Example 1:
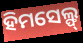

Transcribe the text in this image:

ହିମସେଲ୍ଫ୍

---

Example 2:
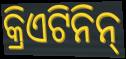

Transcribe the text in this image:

କ୍ରିଏଟିନିନ୍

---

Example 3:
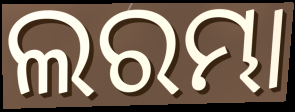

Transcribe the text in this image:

ଲରମ୍ଭା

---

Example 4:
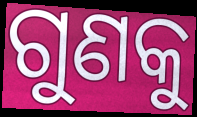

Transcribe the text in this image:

ଗୁଣକୁ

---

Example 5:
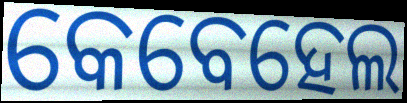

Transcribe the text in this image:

କେବେହେଲ